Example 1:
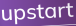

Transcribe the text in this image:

upstart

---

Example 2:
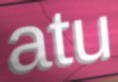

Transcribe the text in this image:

atu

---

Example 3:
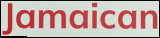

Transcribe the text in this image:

Jamaican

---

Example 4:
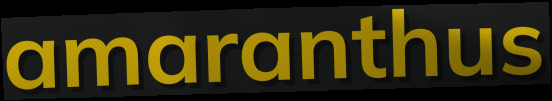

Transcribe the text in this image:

amaranthus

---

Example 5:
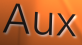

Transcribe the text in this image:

Aux